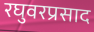
रघुवरप्रसाद